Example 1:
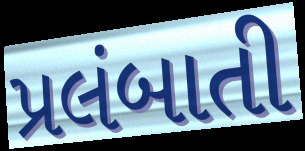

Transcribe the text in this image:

પ્રલંબાતી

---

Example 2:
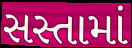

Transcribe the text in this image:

સસ્તામાં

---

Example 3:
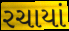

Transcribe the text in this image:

રચાયાં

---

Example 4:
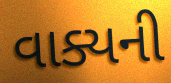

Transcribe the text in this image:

વાક્યની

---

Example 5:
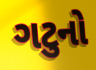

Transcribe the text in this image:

ગટુનો